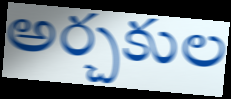
అర్చకుల